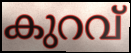
കുറവ്